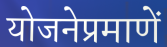
योजनेप्रमाणें